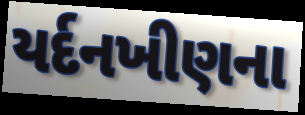
યર્દનખીણના